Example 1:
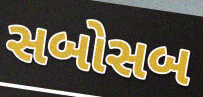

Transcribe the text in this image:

સબોસબ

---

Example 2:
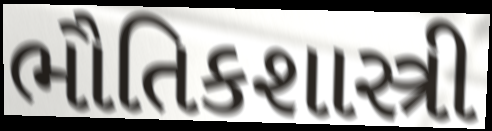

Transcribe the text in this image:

ભૌતિકશાસ્ત્રી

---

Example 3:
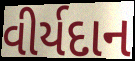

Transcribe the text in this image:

વીર્યદાન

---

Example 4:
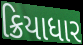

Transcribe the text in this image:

ક્રિયાધાર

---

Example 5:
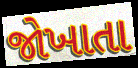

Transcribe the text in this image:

જોખાતા